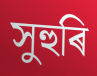
সুহুৰি